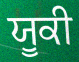
ਯੂਕੀ